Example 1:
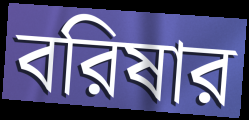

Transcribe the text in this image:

বরিষার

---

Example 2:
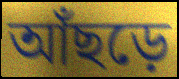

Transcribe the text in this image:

আঁছড়ে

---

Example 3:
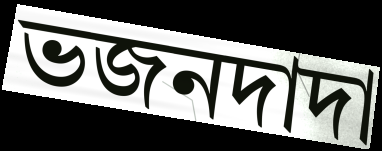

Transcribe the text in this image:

ভজনদাদা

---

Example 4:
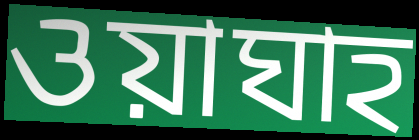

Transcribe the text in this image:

ওয়াঘাহ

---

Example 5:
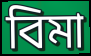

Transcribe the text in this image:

বিমা